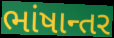
ભાંષાન્તર